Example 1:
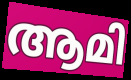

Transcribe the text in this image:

ആമി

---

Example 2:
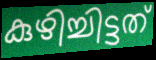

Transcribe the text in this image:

കുഴിച്ചിട്ടത്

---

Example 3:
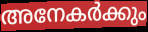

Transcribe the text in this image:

അനേകർക്കും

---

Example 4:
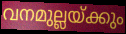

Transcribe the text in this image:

വനമുല്ലയ്ക്കും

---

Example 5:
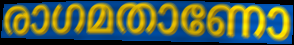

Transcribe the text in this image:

രാഗമതാണോ